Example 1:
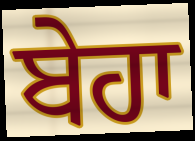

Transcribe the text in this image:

ਬੇਹਾ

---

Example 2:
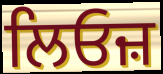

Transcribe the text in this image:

ਲਿਓਜ਼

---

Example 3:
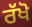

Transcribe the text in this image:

ਰੱਖੋ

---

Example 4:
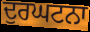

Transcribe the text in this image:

ਦੁਰਘਟਨਾ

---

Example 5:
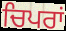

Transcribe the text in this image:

ਚਿਪਰਾਂ